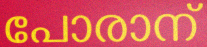
പോരാന്